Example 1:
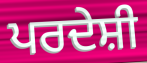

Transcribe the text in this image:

ਪਰਦੇਸ਼ੀ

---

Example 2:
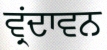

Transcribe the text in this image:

ਵ੍ਰਂਦਾਵਨ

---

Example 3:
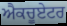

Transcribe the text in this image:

ਐਕਚੂਏਟਰ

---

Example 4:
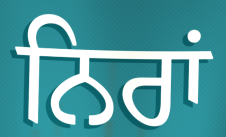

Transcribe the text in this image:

ਨਿਰਾਂ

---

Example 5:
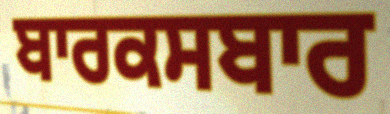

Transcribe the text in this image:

ਬਾਰਕਸਬਾਰ